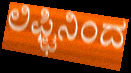
ಲಿಫ್ಟಿನಿಂದ